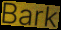
Bark